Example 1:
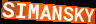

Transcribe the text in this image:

SIMANSKY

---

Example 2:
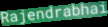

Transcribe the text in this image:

Rajendrabhai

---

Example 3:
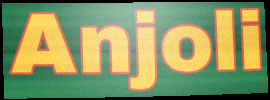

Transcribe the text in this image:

Anjoli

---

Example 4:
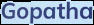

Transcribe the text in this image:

Gopatha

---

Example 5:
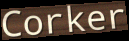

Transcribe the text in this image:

Corker